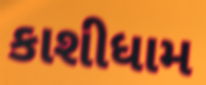
કાશીધામ